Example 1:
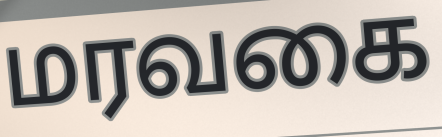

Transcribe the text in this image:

மரவகை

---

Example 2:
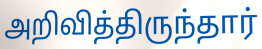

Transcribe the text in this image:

அறிவித்திருந்தார்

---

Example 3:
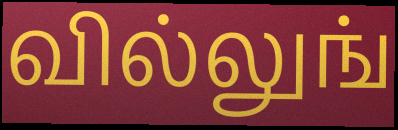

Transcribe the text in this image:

வில்லுங்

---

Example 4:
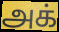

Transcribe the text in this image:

அக்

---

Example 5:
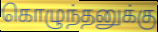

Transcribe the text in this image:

கொழுந்தனுக்கு